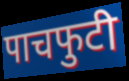
पाचफुटी